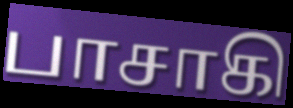
பாசாகி